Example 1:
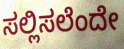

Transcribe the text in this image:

ಸಲ್ಲಿಸಲೆಂದೇ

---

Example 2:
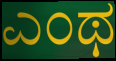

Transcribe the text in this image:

ಎಂಥ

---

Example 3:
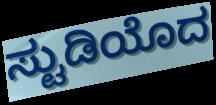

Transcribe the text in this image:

ಸ್ಟುಡಿಯೊದ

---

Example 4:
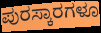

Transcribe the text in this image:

ಪುರಸ್ಕಾರಗಳೂ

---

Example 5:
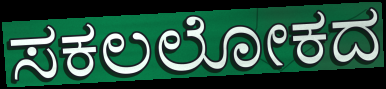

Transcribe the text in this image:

ಸಕಲಲೋಕದ